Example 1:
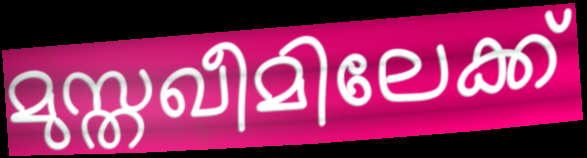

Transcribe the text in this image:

മുസ്തഖീമിലേക്ക്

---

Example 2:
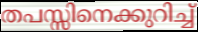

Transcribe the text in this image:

തപസ്സിനെക്കുറിച്ച്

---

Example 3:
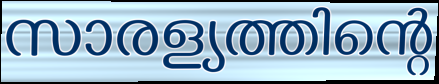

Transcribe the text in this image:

സാരള്യത്തിന്റെ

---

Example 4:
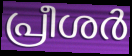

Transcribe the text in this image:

പ്രീശർ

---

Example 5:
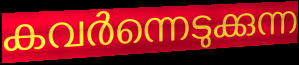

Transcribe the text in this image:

കവർന്നെടുക്കുന്ന